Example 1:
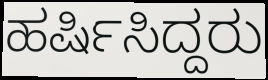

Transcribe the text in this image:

ಹರ್ಷಿಸಿದ್ದರು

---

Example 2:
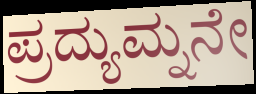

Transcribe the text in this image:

ಪ್ರದ್ಯುಮ್ನನೇ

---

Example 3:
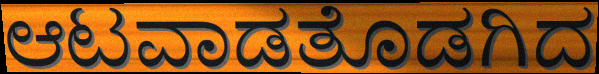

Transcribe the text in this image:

ಆಟವಾಡತೊಡಗಿದ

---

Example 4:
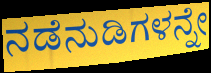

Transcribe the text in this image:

ನಡೆನುಡಿಗಳನ್ನೇ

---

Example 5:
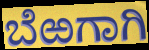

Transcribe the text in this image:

ಬೆಱಗಾಗಿ